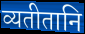
व्यतीतानि